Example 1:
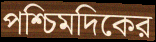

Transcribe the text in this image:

পশ্চিমদিকের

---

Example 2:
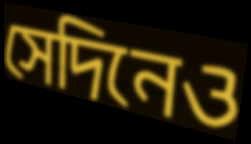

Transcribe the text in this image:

সেদিনেও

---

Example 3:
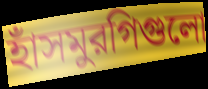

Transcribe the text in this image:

হাঁসমুরগিগুলো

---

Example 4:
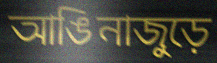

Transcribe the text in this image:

আঙিনাজুড়ে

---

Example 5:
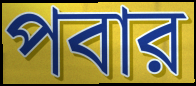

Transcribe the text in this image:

পবার